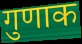
गुणाक